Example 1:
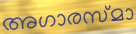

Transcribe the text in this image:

അഗാരസ്മാ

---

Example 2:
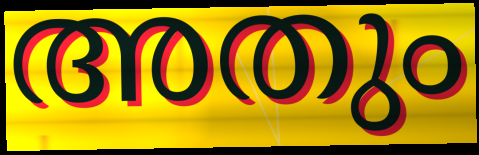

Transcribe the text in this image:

അതും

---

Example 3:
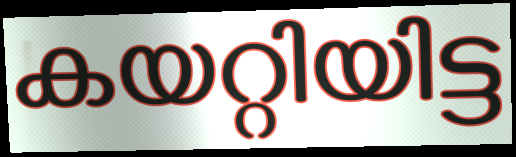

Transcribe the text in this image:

കയറ്റിയിട്ട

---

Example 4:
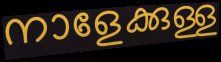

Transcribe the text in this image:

നാളേക്കുള്ള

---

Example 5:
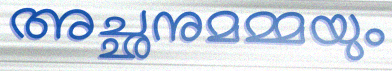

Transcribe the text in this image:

അച്ഛനുമമ്മയും